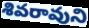
శివరావుని